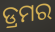
ଡ୍ରମର